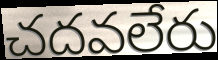
చదవలేరు